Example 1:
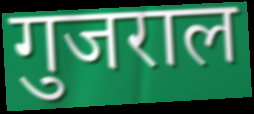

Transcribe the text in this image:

गुजराल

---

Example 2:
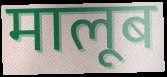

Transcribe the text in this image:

मालूब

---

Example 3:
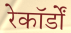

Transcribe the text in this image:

रेकॉर्डों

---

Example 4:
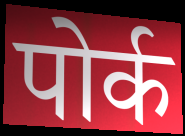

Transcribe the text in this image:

पोर्क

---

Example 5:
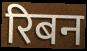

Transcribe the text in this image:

रिबन